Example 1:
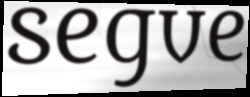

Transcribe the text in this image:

segue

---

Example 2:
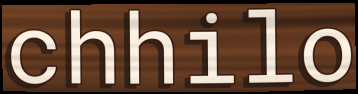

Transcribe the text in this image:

chhilo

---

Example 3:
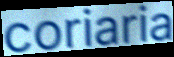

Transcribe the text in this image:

coriaria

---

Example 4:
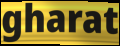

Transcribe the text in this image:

gharat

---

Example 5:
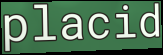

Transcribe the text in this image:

placid